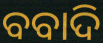
ବବାଦି